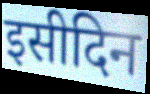
इसीदिन